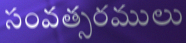
సంవత్సరములు